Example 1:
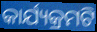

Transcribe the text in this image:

କାର୍ଯ୍ୟକ୍ରମଟି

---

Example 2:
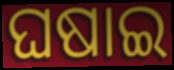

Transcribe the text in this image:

ଘଷାଇ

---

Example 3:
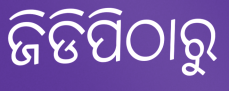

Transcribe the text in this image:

ଜିଡିପିଠାରୁ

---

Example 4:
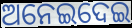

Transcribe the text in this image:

ଅନେଇଦେଇ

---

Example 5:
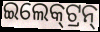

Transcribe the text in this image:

ଇଲେକ୍‌ଟ୍ରନ୍